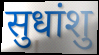
सुधांशु